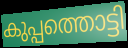
കുപ്പത്തൊട്ടി